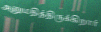
அனுமதித்திருக்கிறார்